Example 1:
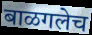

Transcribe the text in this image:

बाळगलेच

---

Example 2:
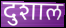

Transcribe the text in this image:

दुशाल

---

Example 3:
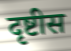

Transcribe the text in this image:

दृष्टीस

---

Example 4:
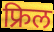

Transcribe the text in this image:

फ्रिल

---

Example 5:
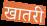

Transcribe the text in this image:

खातरी